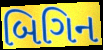
બિગિન